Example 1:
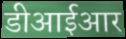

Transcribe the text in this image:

डीआईआर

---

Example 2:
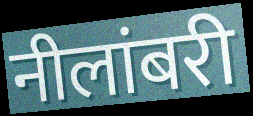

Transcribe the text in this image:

नीलांबरी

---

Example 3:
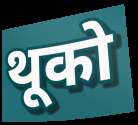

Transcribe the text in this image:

थूको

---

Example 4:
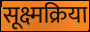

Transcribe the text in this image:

सूक्ष्मक्रिया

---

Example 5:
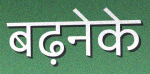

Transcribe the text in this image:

बढ़नेके